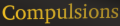
Compulsions